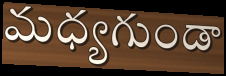
మధ్యగుండా